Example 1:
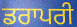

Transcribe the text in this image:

ਡਰਾਪਰੀ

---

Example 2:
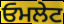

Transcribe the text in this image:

ਓਮਲੇਟ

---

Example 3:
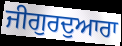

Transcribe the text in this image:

ਜੀਗੁਰਦੁਆਰਾ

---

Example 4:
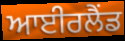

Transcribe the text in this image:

ਆਈਰਲੈਂਡ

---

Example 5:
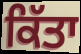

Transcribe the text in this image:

ਕਿੱਤਾ